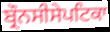
ਬ੍ਰੌਨਸੀਸੇਪਟਿਕਾ